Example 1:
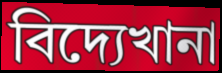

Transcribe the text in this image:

বিদ্যেখানা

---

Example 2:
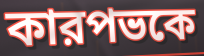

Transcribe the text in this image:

কারপভকে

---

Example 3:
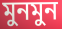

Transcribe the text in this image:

মুনমুন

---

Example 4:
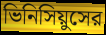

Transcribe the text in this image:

ভিনিসিয়ুসের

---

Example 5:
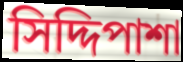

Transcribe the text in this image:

সিদ্দিপাশা